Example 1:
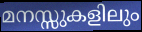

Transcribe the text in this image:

മനസ്സുകളിലും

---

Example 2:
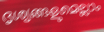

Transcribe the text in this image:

ദൃശ്യങ്ങളുമെല്ലാം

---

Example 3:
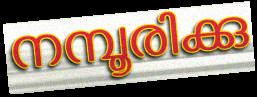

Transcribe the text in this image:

നമ്പൂരിക്കു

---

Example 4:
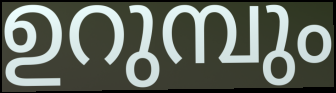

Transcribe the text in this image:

ഉറുമ്പും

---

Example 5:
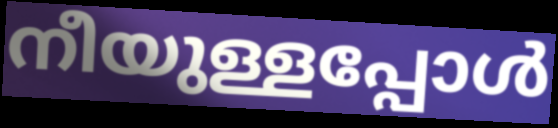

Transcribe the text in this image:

നീയുള്ളപ്പോൾ